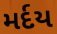
મર્દય